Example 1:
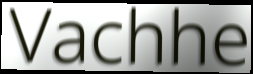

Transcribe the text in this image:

Vachhe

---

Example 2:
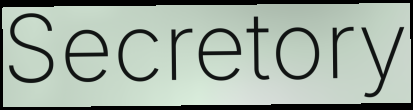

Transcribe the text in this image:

Secretory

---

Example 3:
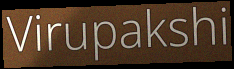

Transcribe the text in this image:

Virupakshi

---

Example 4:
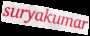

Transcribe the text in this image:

suryakumar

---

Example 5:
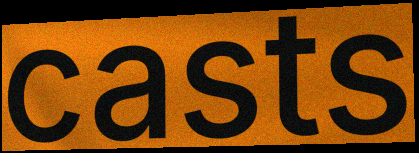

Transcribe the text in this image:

casts